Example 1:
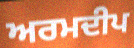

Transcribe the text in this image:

ਅਰਮਦੀਪ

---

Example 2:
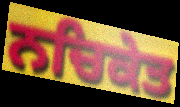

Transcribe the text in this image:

ਨਚਿਕੇਤ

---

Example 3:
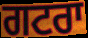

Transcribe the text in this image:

ਗਟਰਾ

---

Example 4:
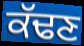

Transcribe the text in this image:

ਕੱਢਣ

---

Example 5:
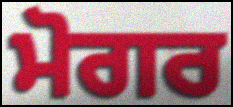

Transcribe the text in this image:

ਮੋਗਰ